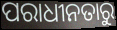
ପରାଧୀନତାରୁ